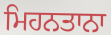
ਮਿਹਨਤਾਨਾ